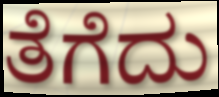
ತೆಗೆದು